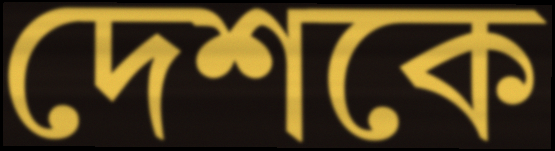
দেশকে